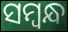
ସମ୍ୱନ୍ଧ